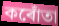
কৰোঁতা